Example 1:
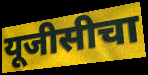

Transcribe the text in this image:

यूजीसीचा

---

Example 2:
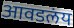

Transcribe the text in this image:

आवडलंय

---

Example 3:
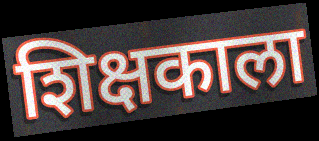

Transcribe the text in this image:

शिक्षकाला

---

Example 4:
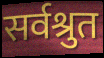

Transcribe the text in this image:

सर्वश्रुत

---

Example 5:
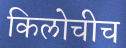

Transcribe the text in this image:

किलोचीच